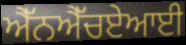
ਐੱਨਐੱਚਏਆਈ